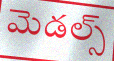
మెడల్స్